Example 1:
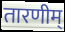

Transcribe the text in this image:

तारणीम्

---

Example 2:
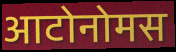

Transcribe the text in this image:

आटोनोमस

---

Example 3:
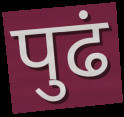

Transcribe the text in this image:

पुढं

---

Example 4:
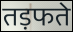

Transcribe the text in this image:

तड़फते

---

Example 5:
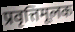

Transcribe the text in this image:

प्रवृत्तिमूलक